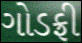
ગોડફ્રી